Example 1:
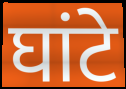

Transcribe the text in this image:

घांटे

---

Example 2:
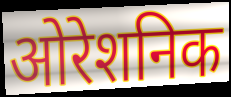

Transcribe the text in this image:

ओरेशनिक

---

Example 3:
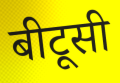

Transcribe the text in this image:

बीटूसी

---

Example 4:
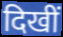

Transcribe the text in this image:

दिखीं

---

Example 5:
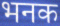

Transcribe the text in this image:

भनक